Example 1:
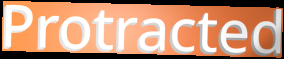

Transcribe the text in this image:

Protracted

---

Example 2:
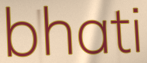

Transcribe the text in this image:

bhati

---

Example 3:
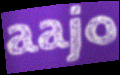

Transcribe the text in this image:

aajo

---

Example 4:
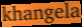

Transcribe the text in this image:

khangela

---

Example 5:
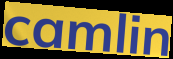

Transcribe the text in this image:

camlin